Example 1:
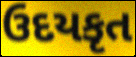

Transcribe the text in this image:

ઉદયકૃત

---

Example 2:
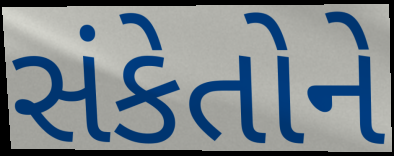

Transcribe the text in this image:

સંકેતોને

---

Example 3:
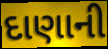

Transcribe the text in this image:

દાણાની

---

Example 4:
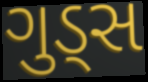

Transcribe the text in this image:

ગુડ્સ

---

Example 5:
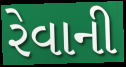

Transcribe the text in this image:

રેવાની